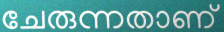
ചേരുന്നതാണ്